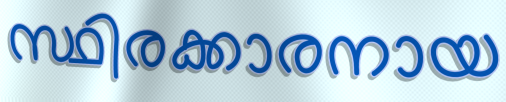
സ്ഥിരക്കാരനായ